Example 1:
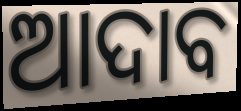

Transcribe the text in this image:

ଆଦାବ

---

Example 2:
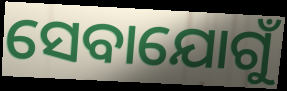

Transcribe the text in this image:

ସେବାଯୋଗୁଁ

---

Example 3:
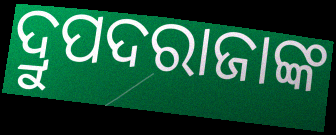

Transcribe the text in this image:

ଦ୍ରୁପଦରାଜାଙ୍କ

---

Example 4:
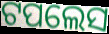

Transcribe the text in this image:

ଟପଲେସ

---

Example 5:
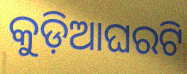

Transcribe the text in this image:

କୁଡ଼ିଆଘରଟି